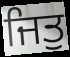
ਜਿਤੁ